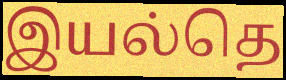
இயல்தெ